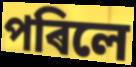
পৰিলে